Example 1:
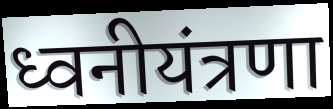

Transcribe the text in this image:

ध्वनीयंत्रणा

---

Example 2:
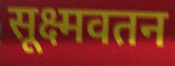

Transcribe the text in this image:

सूक्ष्मवतन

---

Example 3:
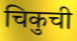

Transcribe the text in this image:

चिकुची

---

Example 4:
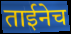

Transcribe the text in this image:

ताईनेच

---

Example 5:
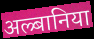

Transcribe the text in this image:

अल्बानिया